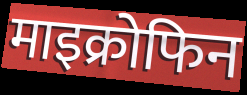
माइक्रोफिन